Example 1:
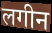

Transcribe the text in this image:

लगीन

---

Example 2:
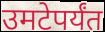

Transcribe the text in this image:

उमटेपर्यंत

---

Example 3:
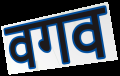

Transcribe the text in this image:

वगव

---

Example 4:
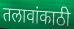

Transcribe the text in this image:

तलावांकाठी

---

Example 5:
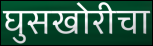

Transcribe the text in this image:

घुसखोरीचा